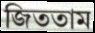
জিততাম